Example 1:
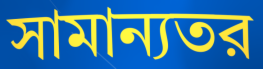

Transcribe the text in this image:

সামান্যতর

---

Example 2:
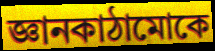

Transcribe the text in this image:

জ্ঞানকাঠামোকে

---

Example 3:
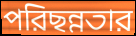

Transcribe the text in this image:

পরিছন্নতার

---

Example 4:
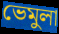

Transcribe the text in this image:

ভেমুলা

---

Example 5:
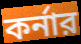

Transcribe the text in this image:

কর্নার